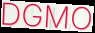
DGMO